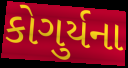
કોગુર્યના